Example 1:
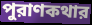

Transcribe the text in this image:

পুরাণকথার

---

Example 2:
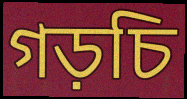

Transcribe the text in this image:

গড়চি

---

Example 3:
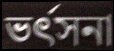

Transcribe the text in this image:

ভর্ৎসনা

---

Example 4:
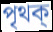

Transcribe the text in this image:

পৃথক্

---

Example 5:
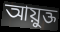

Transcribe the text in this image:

আয়ুক্ত